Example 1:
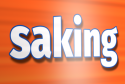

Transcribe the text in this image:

saking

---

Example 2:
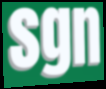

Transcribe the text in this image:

sgn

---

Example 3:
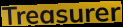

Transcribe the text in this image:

Treasurer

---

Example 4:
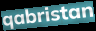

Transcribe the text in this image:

qabristan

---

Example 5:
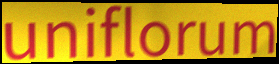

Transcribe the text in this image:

uniflorum